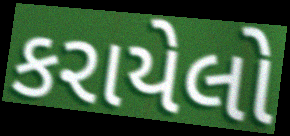
કરાયેલો